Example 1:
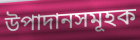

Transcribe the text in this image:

উপাদানসমূহক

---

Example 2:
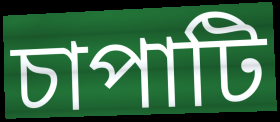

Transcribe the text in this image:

চাপাটি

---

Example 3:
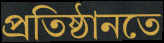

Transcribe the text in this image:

প্ৰতিষ্ঠানতে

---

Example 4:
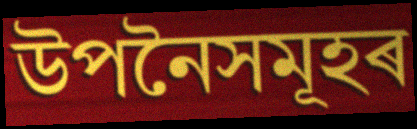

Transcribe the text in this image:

উপনৈসমূহৰ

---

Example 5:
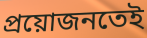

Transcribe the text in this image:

প্ৰয়োজনতেই